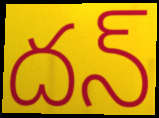
దన్